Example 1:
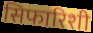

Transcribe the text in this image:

सिफारिशी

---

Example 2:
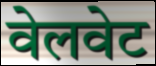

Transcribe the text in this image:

वेलवेट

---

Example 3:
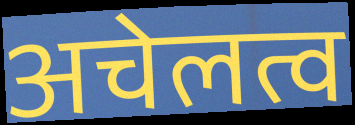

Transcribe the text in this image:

अचेलत्व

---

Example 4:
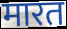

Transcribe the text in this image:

मारत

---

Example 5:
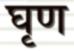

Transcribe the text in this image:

घृण